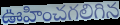
ఊహించగలిగిన